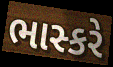
ભાસ્કરે